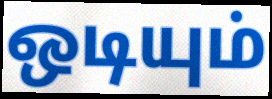
ஒடியும்